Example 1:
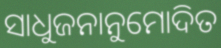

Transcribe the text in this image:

ସାଧୁଜନାନୁମୋଦିତ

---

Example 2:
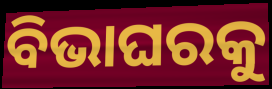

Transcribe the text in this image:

ବିଭାଘରକୁ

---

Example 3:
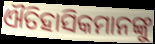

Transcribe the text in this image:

ଐତିହାସିକମାନଙ୍କୁ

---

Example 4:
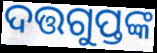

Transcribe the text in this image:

ଦତ୍ତଗୁପ୍ତଙ୍କ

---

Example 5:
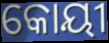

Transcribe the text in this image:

କୋୟୀ